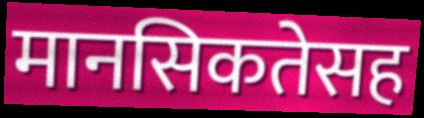
मानसिकतेसह